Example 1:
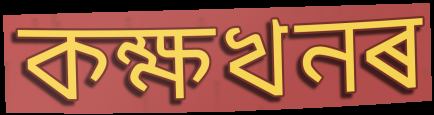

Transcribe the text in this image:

কক্ষখনৰ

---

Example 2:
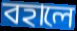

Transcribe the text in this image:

বহালে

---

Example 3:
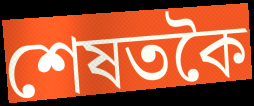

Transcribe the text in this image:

শেষতকৈ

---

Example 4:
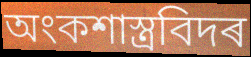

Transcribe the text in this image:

অংকশাস্ত্ৰবিদৰ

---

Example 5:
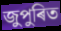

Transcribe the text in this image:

জুপুৰিত